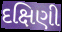
દક્ષિણી